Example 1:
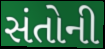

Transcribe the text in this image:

સંતોની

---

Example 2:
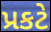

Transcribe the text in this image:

પ્રકટે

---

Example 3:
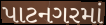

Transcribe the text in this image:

પાટનગરમાં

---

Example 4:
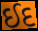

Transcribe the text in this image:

ઈદ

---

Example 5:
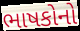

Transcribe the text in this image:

ભાષકોનો